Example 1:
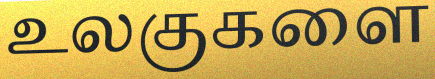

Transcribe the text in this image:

உலகுகளை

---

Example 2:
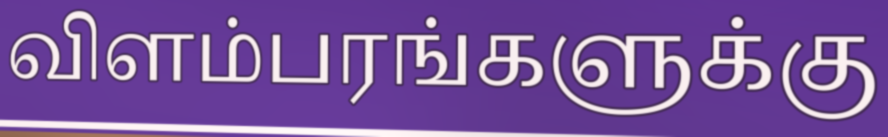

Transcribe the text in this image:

விளம்பரங்களுக்கு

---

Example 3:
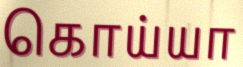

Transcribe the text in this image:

கொய்யா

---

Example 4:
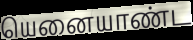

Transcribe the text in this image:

யெனையாண்ட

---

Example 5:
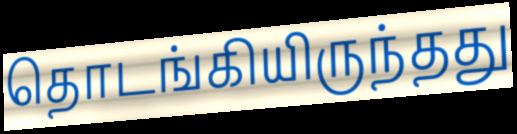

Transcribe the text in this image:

தொடங்கியிருந்தது